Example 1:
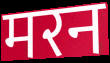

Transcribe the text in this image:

मरन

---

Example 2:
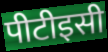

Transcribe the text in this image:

पीटीइसी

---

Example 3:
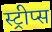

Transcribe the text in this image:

स्ट्रीप्स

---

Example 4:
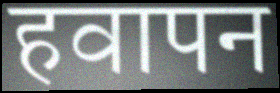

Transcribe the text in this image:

हवापन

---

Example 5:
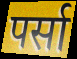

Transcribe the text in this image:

पर्सा